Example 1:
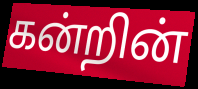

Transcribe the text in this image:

கன்றின்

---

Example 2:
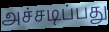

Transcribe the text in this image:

அச்சடிப்பது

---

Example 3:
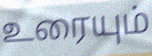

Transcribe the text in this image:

உரையும்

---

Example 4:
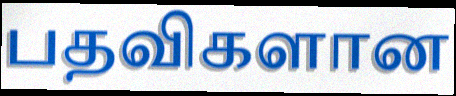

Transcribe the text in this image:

பதவிகளான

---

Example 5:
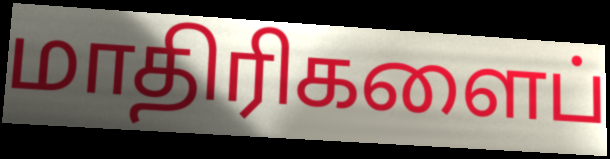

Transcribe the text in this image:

மாதிரிகளைப்